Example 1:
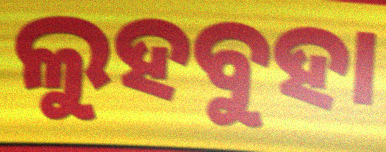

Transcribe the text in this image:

ଲୁହବୁହା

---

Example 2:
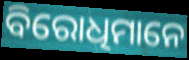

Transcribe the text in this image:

ବିରୋଧିମାନେ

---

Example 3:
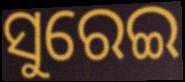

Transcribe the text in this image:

ସୁରେଇ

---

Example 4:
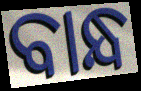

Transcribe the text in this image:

ବାନ୍ଧ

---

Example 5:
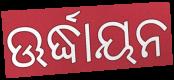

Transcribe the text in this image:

ଊର୍ଦ୍ଧାୟନ